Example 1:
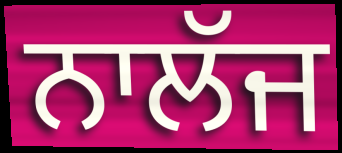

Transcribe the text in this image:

ਨਾਲੱਜ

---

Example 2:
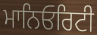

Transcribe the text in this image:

ਮਾਨਿਓਰਿਟੀ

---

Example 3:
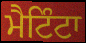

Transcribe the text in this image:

ਮੈਟਿੰਟਾ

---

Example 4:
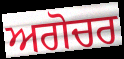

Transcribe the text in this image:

ਅਗੋਚਰ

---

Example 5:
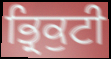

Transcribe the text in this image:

ਭ੍ਰਿਕੁਟੀ